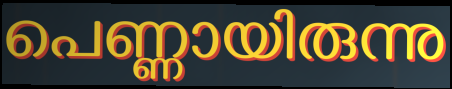
പെണ്ണായിരുന്നു